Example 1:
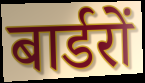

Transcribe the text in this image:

बार्डरों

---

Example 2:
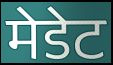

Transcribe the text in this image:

मेडेट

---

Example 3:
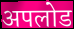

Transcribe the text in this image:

अपलोड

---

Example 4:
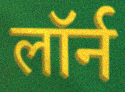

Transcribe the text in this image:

लॉर्न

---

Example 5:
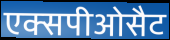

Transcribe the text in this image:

एक्सपीओसैट